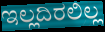
ಇಲ್ಲದಿರಲಿಲ್ಲ